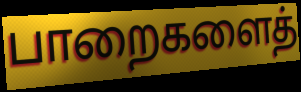
பாறைகளைத்